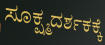
ಸೂಕ್ಷ್ಮದರ್ಶಕಕ್ಕೆ